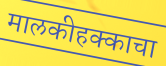
मालकीहक्काचा